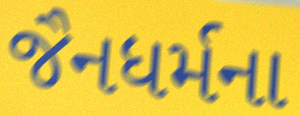
જૈનધર્મના